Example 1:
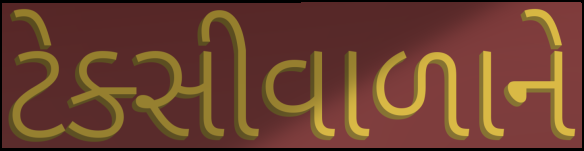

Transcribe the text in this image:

ટેક્સીવાળાને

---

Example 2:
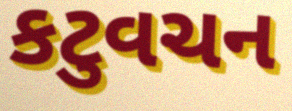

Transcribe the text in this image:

કટુવચન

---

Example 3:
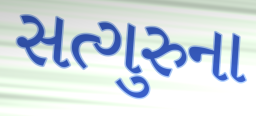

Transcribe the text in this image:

સત્ગુરુના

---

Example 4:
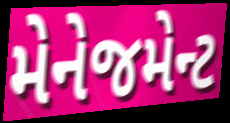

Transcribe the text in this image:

મેનેજમેન્ટ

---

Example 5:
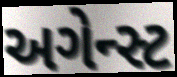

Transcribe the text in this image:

અગેન્સ્ટ